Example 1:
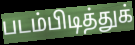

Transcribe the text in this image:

படம்பிடித்துக்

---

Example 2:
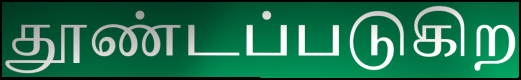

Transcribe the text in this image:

தூண்டப்படுகிற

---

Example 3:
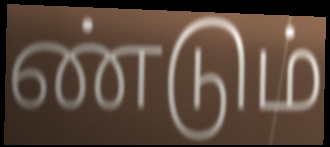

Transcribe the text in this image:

ண்டும்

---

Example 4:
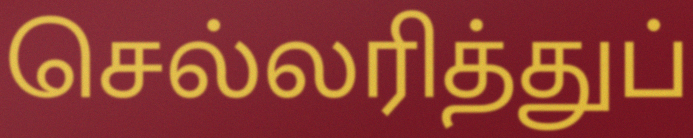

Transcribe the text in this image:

செல்லரித்துப்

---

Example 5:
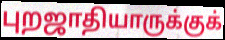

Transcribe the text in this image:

புறஜாதியாருக்குக்